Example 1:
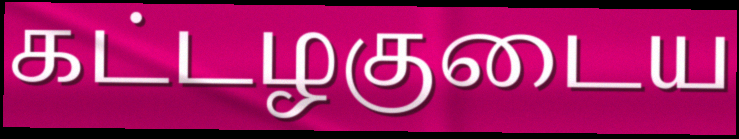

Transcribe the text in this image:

கட்டழகுடைய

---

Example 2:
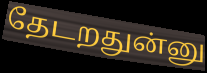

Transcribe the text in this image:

தேடறதுன்னு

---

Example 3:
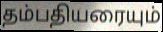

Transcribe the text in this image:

தம்பதியரையும்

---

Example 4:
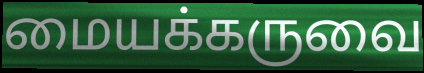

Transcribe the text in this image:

மையக்கருவை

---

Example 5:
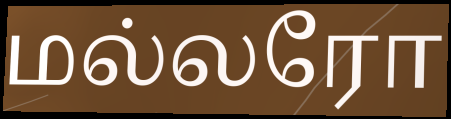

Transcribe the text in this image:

மல்லரோ